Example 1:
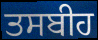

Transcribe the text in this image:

ਤਸਬੀਹ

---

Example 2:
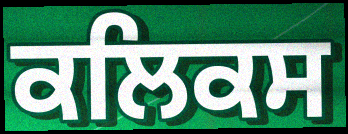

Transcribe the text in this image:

ਕਲਿਕਸ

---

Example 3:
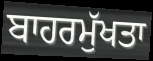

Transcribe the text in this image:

ਬਾਹਰਮੁੱਖਤਾ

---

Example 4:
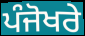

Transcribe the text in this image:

ਪੰਜੋਖਰੇ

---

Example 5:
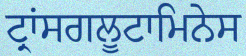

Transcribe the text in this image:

ਟ੍ਰਾਂਸਗਲੂਟਾਮਿਨੇਸ